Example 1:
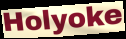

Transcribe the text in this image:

Holyoke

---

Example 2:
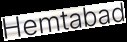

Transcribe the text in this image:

Hemtabad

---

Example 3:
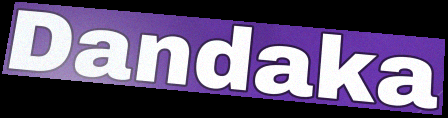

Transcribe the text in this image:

Dandaka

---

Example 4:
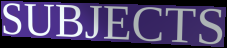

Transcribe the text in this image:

SUBJECTS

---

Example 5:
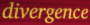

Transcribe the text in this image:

divergence